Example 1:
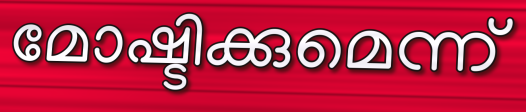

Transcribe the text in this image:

മോഷ്ടിക്കുമെന്ന്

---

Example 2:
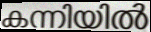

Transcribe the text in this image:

കന്നിയിൽ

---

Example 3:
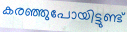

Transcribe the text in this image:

കരഞ്ഞുപോയിട്ടുണ്ട്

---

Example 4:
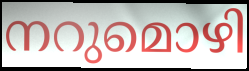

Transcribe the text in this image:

നറുമൊഴി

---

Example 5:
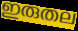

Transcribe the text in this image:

ഇരുതല